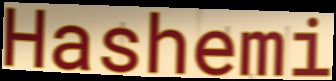
Hashemi